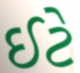
ઈટે